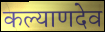
कल्याणदेव